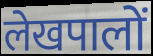
लेखपालों